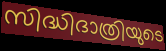
സിദ്ധിദാത്രിയുടെ